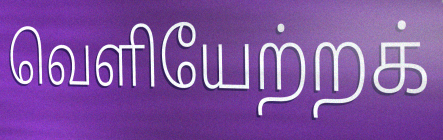
வெளியேற்றக்